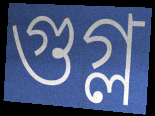
গুগ্ল